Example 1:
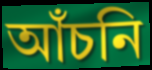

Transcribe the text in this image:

আঁচনি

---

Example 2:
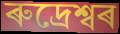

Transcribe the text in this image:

ৰুদ্ৰেশ্বৰ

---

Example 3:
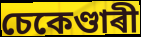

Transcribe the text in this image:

চেকেণ্ডাৰী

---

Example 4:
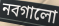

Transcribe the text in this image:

নবগালো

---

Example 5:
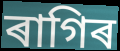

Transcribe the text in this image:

ৰাগিৰ